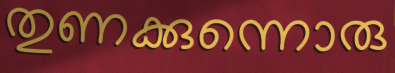
തുണക്കുന്നൊരു